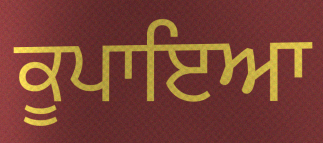
ਕੂਪਾਇਆ